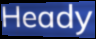
Heady